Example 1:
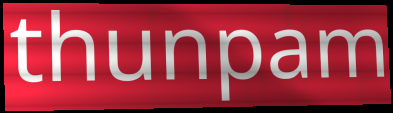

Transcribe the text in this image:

thunpam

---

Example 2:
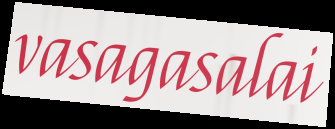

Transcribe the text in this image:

vasagasalai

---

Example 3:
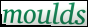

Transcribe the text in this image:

moulds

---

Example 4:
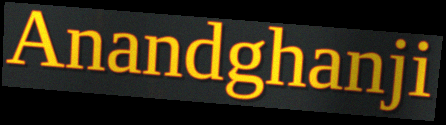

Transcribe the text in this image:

Anandghanji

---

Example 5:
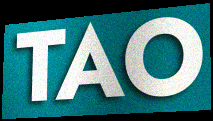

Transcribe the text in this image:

TAO